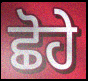
ਛੋਹੇ